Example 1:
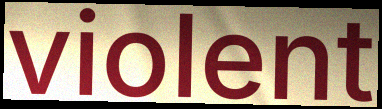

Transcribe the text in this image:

violent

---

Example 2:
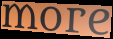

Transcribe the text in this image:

more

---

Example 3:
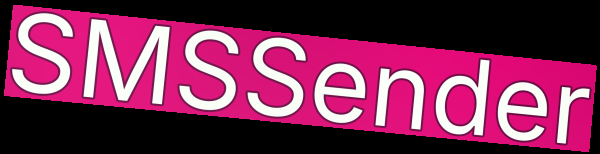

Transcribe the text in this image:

SMSSender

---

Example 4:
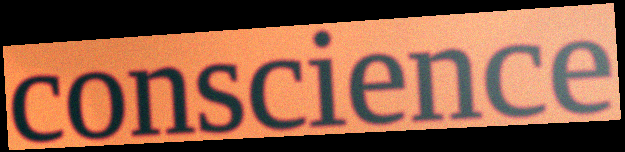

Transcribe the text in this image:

conscience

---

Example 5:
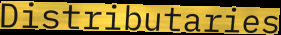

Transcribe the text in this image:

Distributaries